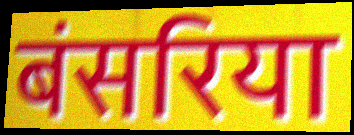
बंसरिया